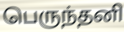
பெருந்தனி